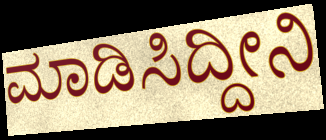
ಮಾಡಿಸಿದ್ದೀನಿ